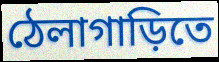
ঠেলাগাড়িতে